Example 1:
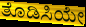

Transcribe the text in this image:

ತೊಡಿಸಿಯೇ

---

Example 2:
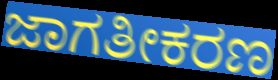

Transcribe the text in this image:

ಜಾಗತೀಕರಣ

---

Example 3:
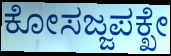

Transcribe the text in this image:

ಕೋಸಜ್ಜಪಕ್ಖೇ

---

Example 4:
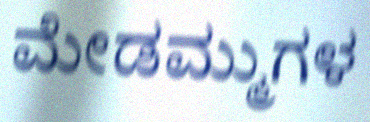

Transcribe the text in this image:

ಮೇಡಮ್ಮುಗಳ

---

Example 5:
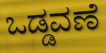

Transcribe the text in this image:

ಒಡ್ಡವಣೆ